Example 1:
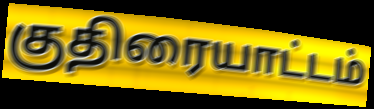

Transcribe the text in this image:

குதிரையாட்டம்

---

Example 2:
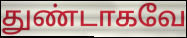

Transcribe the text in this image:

துண்டாகவே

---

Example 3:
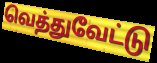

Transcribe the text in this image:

வெத்துவேட்டு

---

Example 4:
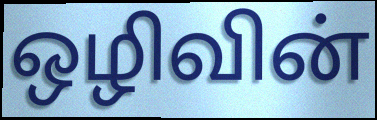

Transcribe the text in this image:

ஒழிவின்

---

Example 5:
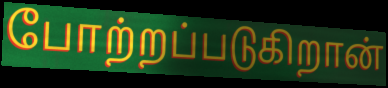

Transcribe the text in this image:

போற்றப்படுகிறான்